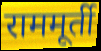
राममूर्ती